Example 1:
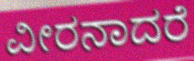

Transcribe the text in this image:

ವೀರನಾದರೆ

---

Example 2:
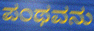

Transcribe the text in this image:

ಪಂಥವನು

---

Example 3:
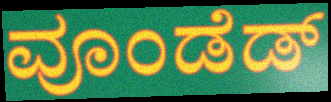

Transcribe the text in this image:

ವೂಂಡೆಡ್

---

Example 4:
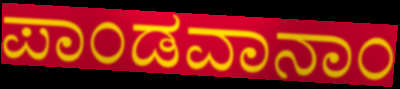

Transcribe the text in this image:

ಪಾಂಡವಾನಾಂ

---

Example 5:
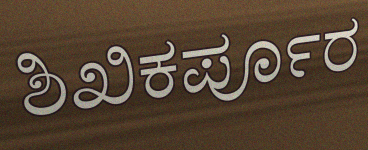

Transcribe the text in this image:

ಶಿಖಿಕರ್ಪೂರ